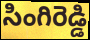
సింగిరెడ్డి